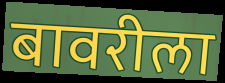
बावरीला